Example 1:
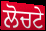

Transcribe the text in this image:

ਲੋਚਟੇ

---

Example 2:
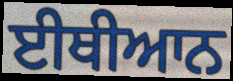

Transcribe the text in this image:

ਈਥੀਆਨ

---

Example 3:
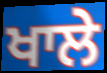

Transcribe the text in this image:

ਖਾਲੇ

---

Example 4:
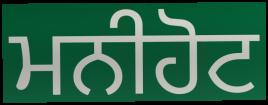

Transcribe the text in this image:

ਮਨੀਹੋਟ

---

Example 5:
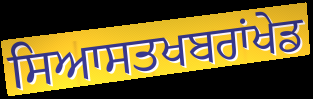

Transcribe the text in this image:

ਸਿਆਸਤਖਬਰਾਂਖੇਡ